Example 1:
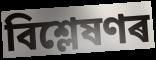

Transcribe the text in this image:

বিশ্লেষণৰ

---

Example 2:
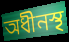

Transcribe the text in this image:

অধীনস্থ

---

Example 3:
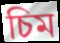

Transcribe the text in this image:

চিম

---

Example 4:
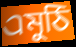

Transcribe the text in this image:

এমুঠি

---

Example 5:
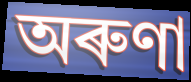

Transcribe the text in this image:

অৰুণা